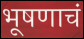
भूषणाचं